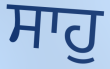
ਸਾਹੁ